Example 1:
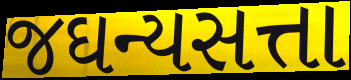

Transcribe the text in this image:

જઘન્યસત્તા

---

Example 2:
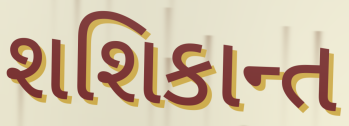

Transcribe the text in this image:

શશિકાન્ત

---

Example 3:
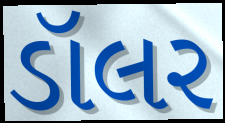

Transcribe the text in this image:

ડૉલર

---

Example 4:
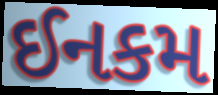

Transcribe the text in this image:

ઈનકમ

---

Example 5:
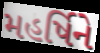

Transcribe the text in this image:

મહર્ષિને